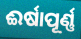
ଈର୍ଷାପୂର୍ଣ୍ଣ